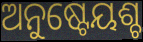
ଅନୁଷ୍ଟେୟଶ୍ଚ